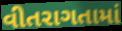
વીતરાગતામાં